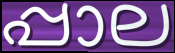
പ്പാല